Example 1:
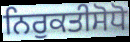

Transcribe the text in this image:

ਨਿਰੁਕਤੀਸੋਧੋ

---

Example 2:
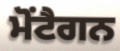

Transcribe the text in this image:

ਮੋਂਟੈਗਨ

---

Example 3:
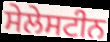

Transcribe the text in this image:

ਸੇਲੇਸਟੀਨ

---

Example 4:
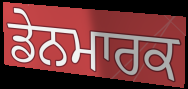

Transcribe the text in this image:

ਡੇਨਮਾਰਕ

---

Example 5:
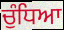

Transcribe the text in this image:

ਚੁੰਧਿਆ